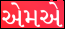
એમએ